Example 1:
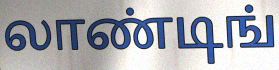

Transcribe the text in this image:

லாண்டிங்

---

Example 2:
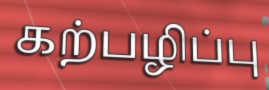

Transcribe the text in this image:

கற்பழிப்பு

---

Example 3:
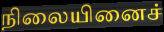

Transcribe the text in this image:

நிலையினைச்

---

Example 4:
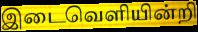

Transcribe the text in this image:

இடைவெளியின்றி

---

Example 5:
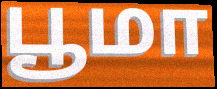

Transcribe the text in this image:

பூமா